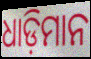
ଧାଡ଼ିମାନ